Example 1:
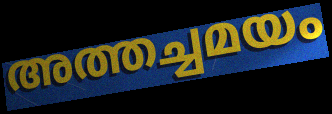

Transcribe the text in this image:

അത്തച്ചമയം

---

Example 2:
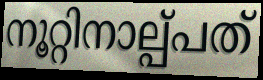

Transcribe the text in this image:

നൂറ്റിനാല്പ്പത്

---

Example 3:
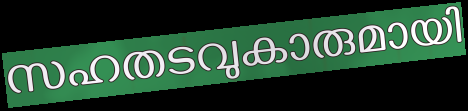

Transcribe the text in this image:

സഹതടവുകാരുമായി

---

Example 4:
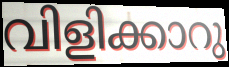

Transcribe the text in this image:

വിളിക്കാറു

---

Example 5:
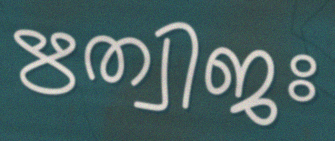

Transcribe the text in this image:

ഋത്വിജഃ